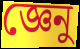
জ্ঞেনু